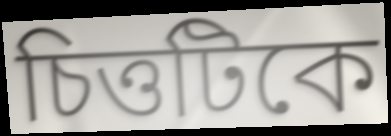
চিত্তটিকে